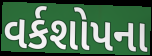
વર્કશોપના